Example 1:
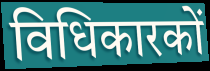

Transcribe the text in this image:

विधिकारकों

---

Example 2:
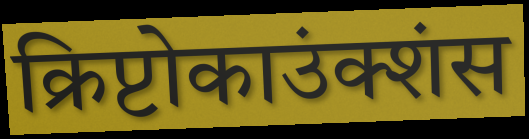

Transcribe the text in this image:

क्रिप्टोकाउंक्शंस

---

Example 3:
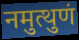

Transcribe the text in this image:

नमुत्थुणं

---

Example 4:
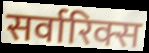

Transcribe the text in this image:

सर्वारिक्स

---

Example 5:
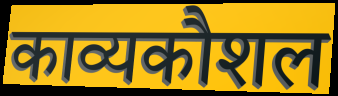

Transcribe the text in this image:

काव्यकौशल